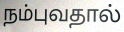
நம்புவதால்